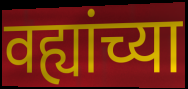
वह्यांच्या